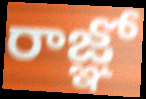
రాజ్ఞో